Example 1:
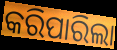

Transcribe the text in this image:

କରିପାରିଲା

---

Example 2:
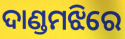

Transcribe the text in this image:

ଦାଣ୍ଡମଝିରେ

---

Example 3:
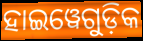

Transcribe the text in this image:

ହାଇୱେଗୁଡ଼ିକ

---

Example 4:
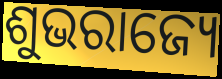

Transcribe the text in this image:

ଶୁଭରାଜ୍ୟେ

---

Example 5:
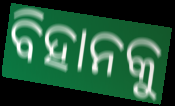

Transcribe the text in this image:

ବିହାନକୁ